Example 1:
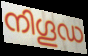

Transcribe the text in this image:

നിഗൂഡ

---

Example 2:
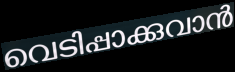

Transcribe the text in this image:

വെടിപ്പാക്കുവാൻ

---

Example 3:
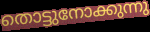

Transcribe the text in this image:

തൊട്ടുനോക്കുന്നു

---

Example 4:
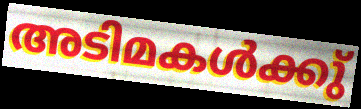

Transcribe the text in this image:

അടിമകൾക്കു്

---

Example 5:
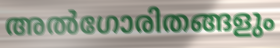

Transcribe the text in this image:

അൽഗോരിതങ്ങളും